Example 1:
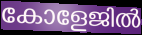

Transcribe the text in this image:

കോളേജിൽ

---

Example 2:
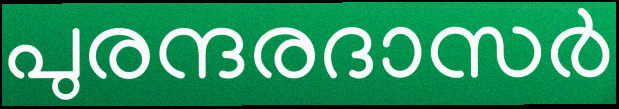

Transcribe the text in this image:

പുരന്ദരദാസർ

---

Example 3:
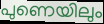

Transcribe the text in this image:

പുണെയിലും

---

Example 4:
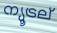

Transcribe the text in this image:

ന്യൂട്രല്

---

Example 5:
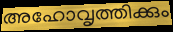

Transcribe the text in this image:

അഹോവൃത്തിക്കും